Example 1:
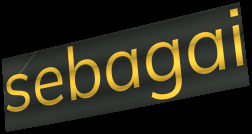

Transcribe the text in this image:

sebagai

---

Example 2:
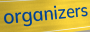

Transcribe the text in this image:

organizers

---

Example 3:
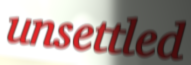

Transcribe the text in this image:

unsettled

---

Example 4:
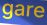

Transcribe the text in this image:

gare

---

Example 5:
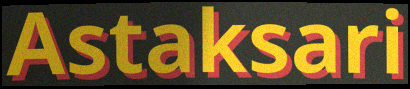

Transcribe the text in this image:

Astaksari